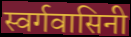
स्वर्गवासिनी